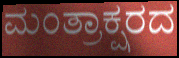
ಮಂತ್ರಾಕ್ಷರದ